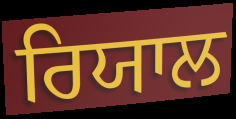
ਰਿਯਾਲ